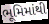
ભૂમિમાંથી